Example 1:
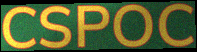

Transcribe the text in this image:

CSPOC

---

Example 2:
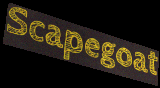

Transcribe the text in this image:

Scapegoat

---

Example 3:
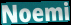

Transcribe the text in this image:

Noemi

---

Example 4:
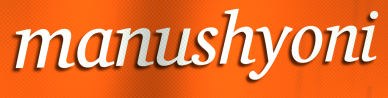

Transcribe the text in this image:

manushyoni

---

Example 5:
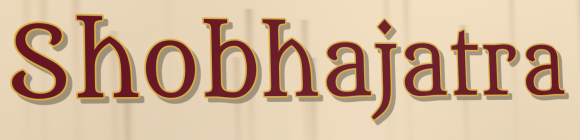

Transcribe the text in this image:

Shobhajatra